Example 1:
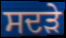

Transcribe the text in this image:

ਸਦੜੇ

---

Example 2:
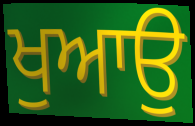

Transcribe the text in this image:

ਖੁਆਉ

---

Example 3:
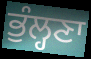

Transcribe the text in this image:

ਭੁੰਲ੍ਹਣਾ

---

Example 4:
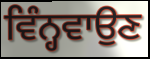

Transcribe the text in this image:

ਵਿੰਨ੍ਹਵਾਉਣ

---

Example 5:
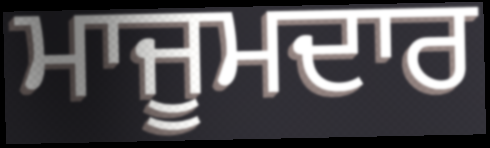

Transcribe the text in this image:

ਮਾਜੂਮਦਾਰ